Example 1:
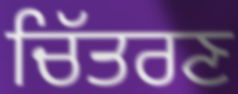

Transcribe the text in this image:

ਚਿੱਤਰਣ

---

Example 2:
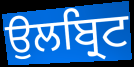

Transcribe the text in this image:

ਉਲਬ੍ਰਿਟ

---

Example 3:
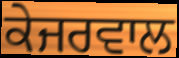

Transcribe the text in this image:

ਕੇਜਰਵਾਲ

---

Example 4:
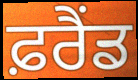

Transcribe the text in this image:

ਫ਼ਰੈਂਡ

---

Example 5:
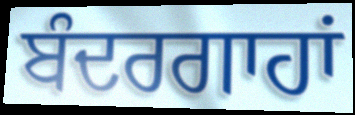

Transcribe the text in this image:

ਬੰਦਰਗਾਹਾਂ